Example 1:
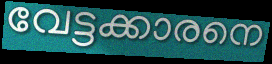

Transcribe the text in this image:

വേട്ടക്കാരനെ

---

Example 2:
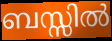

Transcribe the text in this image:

ബസ്സിൽ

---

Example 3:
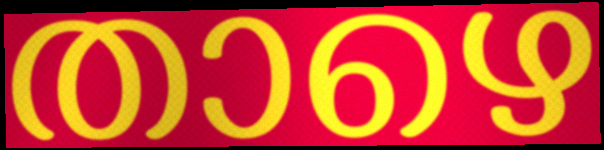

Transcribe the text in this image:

താഴെ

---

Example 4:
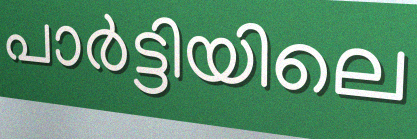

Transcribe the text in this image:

പാർട്ടിയിലെ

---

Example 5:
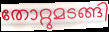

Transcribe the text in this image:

തോറ്റുമടങ്ങി